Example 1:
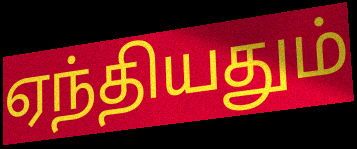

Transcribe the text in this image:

ஏந்தியதும்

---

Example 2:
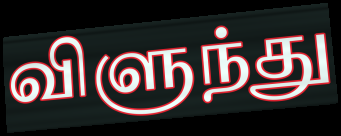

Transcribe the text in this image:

விளுந்து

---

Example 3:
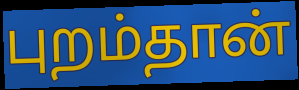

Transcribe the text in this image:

புறம்தான்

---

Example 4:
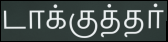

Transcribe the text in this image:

டாக்குத்தர்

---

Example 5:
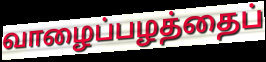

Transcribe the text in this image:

வாழைப்பழத்தைப்